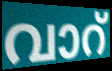
വാറ്